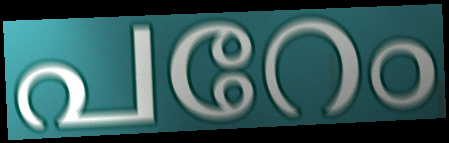
പറേം